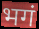
भगं